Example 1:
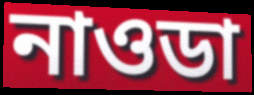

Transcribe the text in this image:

নাওডা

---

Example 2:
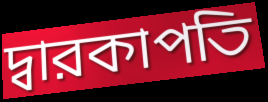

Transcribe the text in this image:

দ্বারকাপতি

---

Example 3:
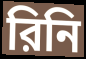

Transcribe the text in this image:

রিনি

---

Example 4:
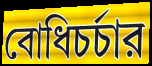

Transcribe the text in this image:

বোধিচর্চার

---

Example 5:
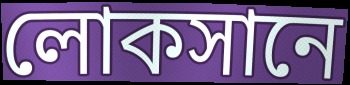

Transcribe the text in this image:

লোকসানে